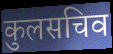
कुलसचिव